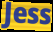
Jess